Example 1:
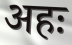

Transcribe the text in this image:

अहः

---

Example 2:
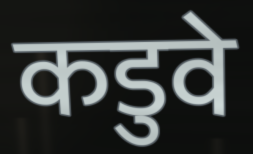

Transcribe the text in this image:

कडुवे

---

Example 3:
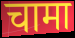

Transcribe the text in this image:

चामा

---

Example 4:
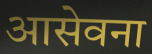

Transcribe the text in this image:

आसेवना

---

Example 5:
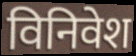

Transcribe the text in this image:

विनिवेश